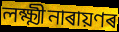
লক্ষ্মীনাৰায়ণৰ